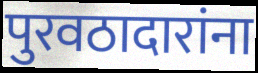
पुरवठादारांना